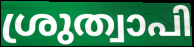
ശ്രുത്വാപി